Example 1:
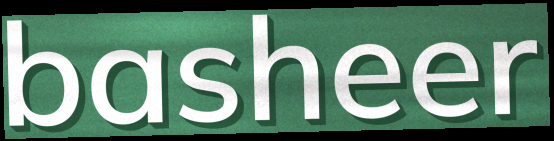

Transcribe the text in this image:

basheer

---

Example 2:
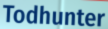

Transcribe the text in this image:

Todhunter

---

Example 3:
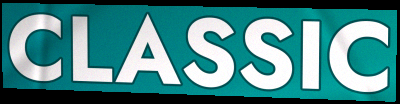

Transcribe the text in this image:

CLASSIC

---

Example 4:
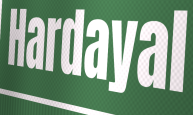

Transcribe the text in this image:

Hardayal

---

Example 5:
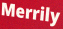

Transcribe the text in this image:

Merrily